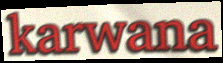
karwana